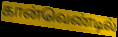
கான்வெண்டில்